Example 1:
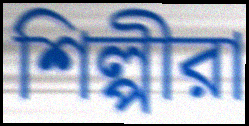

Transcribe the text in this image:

শিল্পীরা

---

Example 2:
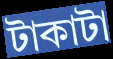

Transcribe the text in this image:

টাকাটা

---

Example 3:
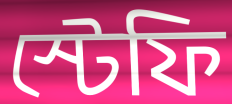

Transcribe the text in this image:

স্টেফি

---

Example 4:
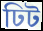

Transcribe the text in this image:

ঢিট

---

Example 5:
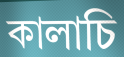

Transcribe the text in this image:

কালাচি